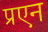
प्रएन